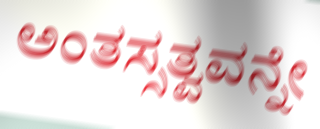
ಅಂತಸ್ಸತ್ವವನ್ನೇ